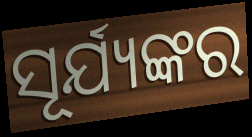
ସୂର୍ଯ୍ୟଙ୍କର